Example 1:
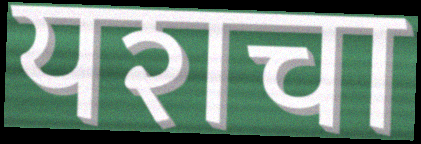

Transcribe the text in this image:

यशचा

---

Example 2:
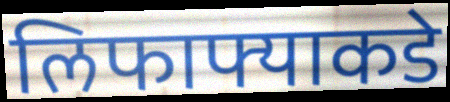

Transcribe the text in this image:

लिफाफ्याकडे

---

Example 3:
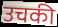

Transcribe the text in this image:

उचकी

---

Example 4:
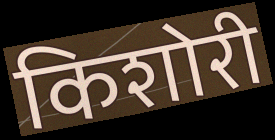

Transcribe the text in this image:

किशोरी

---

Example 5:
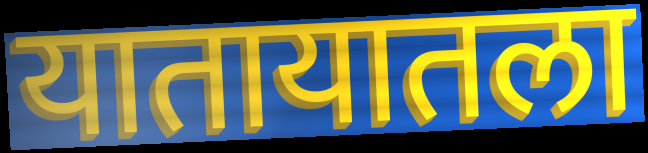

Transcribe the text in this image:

यातायातला